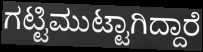
ಗಟ್ಟಿಮುಟ್ಟಾಗಿದ್ದಾರೆ